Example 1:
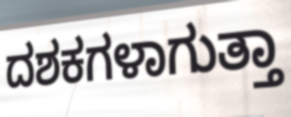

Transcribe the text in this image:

ದಶಕಗಳಾಗುತ್ತಾ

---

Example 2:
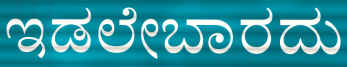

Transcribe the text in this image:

ಇಡಲೇಬಾರದು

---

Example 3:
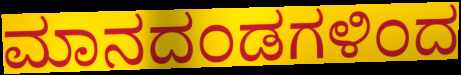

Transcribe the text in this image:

ಮಾನದಂಡಗಳಿಂದ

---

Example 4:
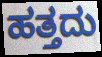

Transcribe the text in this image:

ಹತ್ತದು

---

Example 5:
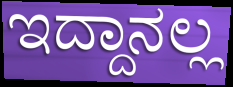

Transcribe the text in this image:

ಇದ್ದಾನಲ್ಲ